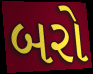
બરો